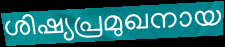
ശിഷ്യപ്രമുഖനായ